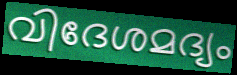
വിദേശമദ്യം